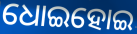
ଧୋଇହୋଇ